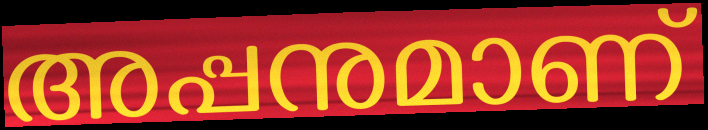
അപ്പനുമാണ്